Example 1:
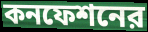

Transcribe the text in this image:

কনফেশনের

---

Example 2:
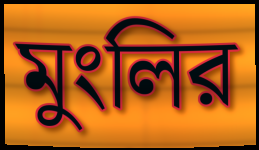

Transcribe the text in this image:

মুংলির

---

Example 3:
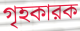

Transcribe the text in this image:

গৃহকারক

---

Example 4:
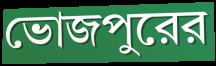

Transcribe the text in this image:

ভোজপুরের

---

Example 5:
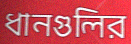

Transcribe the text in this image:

ধানগুলির